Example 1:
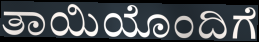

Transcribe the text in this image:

ತಾಯಿಯೊಂದಿಗೆ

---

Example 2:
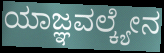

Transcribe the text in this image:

ಯಾಜ್ಞವಲ್ಕ್ಯೇನ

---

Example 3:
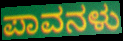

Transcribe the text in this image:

ಪಾವನಳು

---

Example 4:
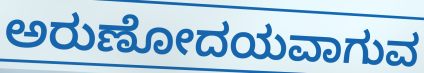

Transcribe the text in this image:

ಅರುಣೋದಯವಾಗುವ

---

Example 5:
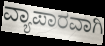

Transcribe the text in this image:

ವ್ಯಾಪಾರವಾಗಿ